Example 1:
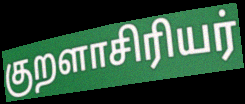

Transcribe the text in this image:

குறளாசிரியர்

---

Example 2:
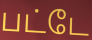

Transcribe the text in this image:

பட்டே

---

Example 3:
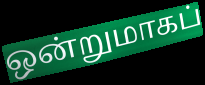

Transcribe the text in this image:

ஒன்றுமாகப்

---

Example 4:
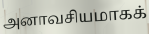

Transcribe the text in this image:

அனாவசியமாகக்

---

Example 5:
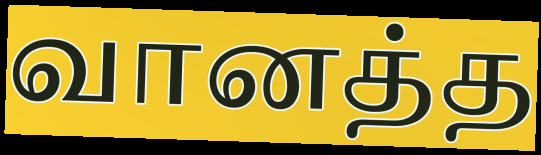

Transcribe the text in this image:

வானத்த